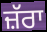
ਜ਼ੱਰਾ